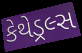
કેથેડ્રલ્સ